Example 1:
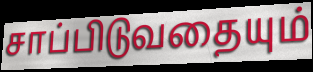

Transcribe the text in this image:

சாப்பிடுவதையும்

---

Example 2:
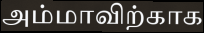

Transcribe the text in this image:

அம்மாவிற்காக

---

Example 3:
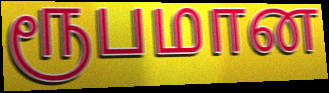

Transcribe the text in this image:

ரூபமான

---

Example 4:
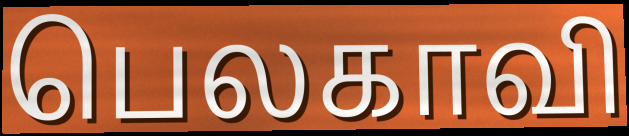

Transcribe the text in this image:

பெலகாவி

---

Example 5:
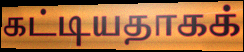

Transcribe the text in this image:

கட்டியதாகக்